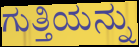
ಗುತ್ತಿಯನ್ನು